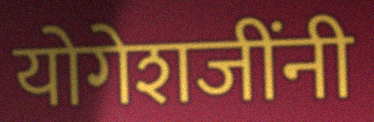
योगेशजींनी